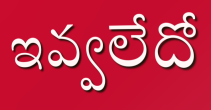
ఇవ్వలేదో